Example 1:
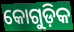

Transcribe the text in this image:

କୋଗୁଡ଼ିକ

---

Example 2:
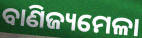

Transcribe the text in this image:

ବାଣିଜ୍ୟମେଳା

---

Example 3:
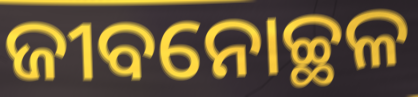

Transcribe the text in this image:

ଜୀବନୋଚ୍ଛଳ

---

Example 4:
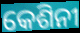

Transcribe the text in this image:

କେଶିନୀ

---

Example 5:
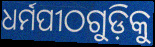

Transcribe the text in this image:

ଧର୍ମପୀଠଗୁଡ଼ିକୁ